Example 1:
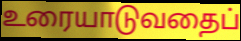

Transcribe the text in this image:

உரையாடுவதைப்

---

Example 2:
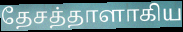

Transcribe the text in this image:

தேசத்தாளாகிய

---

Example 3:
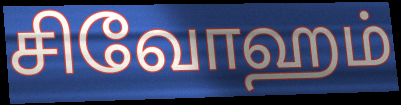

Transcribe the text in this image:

சிவோஹம்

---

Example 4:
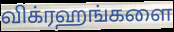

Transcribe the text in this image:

விக்ரஹங்களை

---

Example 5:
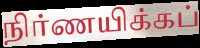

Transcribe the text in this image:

நிர்ணயிக்கப்